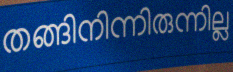
തങ്ങിനിന്നിരുന്നില്ല